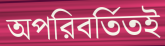
অপরিবর্তিতই